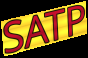
SATP